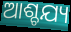
ଆଶ୍ଚଯ୍ୟ